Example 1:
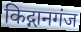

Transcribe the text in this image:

किद्गानगंज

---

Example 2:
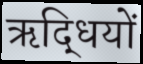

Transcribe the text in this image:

ऋद्धियों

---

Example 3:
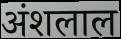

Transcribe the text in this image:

अंशलाल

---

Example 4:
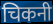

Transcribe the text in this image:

चिकनी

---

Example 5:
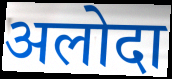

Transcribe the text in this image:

अलोदा